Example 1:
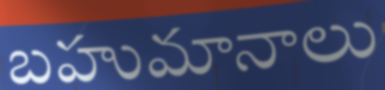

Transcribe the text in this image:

బహుమానాలు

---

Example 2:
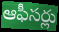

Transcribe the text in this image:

ఆఫీసర్లు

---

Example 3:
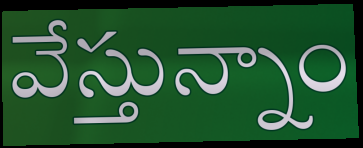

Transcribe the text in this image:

వేస్తున్నాం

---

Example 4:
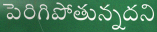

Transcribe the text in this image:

పెరిగిపోతున్నదని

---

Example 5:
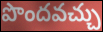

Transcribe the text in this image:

పొందవచ్చు